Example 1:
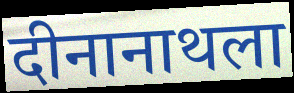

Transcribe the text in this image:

दीनानाथला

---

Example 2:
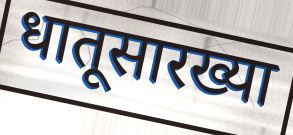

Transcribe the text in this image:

धातूसारख्या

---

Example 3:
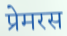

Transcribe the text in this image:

प्रेमरस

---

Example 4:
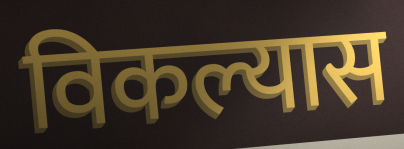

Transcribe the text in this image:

विकल्यास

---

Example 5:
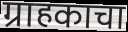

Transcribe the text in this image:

ग्राहकाचा